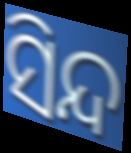
ସିନ୍ଦ